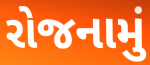
રોજનામું